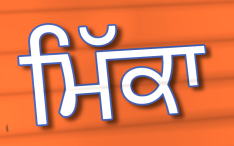
ਮਿੱਕਾ